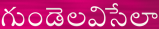
గుండెలవిసేలా